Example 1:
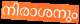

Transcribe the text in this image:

നിരാശനും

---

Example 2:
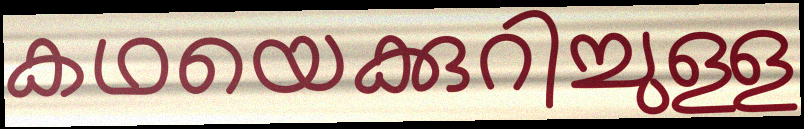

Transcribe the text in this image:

കഥയെക്കുറിച്ചുള്ള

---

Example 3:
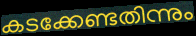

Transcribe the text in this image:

കടക്കേണ്ടതിന്നും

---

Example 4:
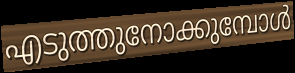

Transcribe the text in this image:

എടുത്തുനോക്കുമ്പോൾ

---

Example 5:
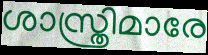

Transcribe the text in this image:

ശാസ്ത്രിമാരേ